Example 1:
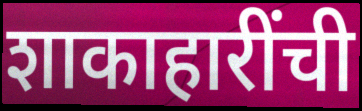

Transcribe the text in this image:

शाकाहारींची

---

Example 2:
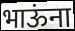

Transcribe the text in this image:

भाऊंना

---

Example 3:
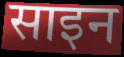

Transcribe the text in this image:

साइन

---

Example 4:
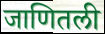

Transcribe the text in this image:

जाणितली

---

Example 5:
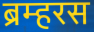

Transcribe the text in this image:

ब्रम्हरस